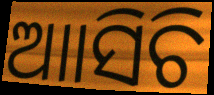
ଆାସିଚି